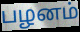
பழனம்